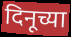
दिनूच्या